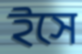
ইসে